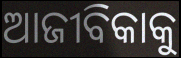
ଆଜୀବିକାକୁ